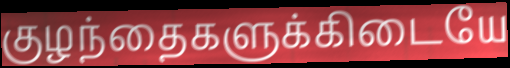
குழந்தைகளுக்கிடையே